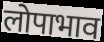
लोपाभाव